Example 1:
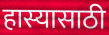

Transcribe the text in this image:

हास्यासाठी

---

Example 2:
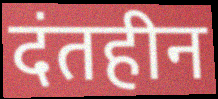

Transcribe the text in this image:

दंतहीन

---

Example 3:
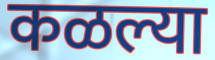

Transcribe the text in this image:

कळल्या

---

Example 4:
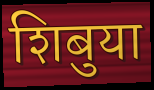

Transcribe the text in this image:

शिबुया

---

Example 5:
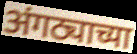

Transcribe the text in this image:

अंगठ्याच्या